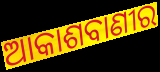
ଆକାଶବାଣୀର